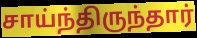
சாய்ந்திருந்தார்